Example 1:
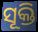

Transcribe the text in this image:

ସୂକ୍ତି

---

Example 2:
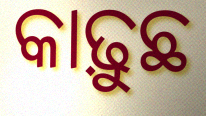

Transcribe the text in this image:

କାଢ଼ୁଛ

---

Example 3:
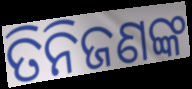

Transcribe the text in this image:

ତିନିଜଣଙ୍କ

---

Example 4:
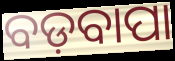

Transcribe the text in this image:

ବଡ଼ବାପା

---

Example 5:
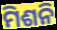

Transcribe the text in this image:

ମିଶନି